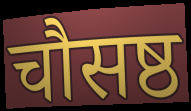
चौसष्ठ